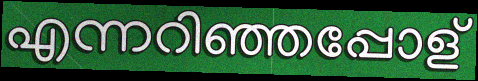
എന്നറിഞ്ഞപ്പോള്